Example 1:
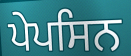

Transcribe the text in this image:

ਪੇਪਸਿਨ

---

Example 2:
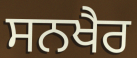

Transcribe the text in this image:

ਸਨਖੈਰ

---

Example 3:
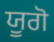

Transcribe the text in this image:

ਯੂਗੋ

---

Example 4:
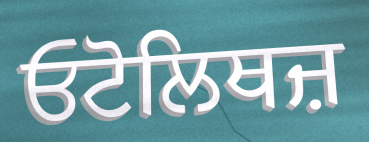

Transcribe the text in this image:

ਓਟੋਲਿਥਜ਼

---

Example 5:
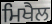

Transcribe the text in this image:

ਮਿਖੈਲ